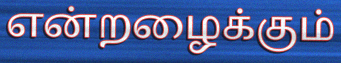
என்றழைக்கும்